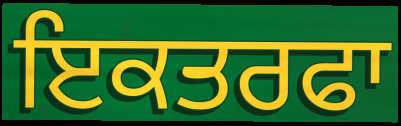
ਇਕਤਰਫਾ